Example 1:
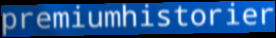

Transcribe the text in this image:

premiumhistorier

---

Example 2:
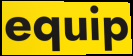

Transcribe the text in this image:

equip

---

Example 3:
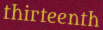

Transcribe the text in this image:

thirteenth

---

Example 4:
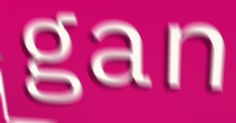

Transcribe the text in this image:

gan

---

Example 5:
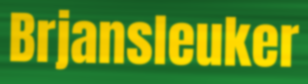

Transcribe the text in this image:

Brjansleuker